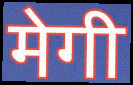
मेगी